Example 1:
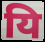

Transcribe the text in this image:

यि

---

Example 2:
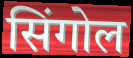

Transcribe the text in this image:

सिंगोल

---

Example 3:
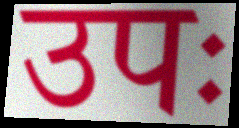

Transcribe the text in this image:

उपः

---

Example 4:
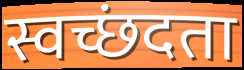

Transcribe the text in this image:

स्वच्छंदता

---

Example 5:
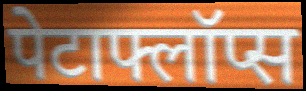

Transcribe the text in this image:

पेटाफ्लॉप्स